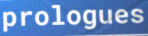
prologues